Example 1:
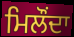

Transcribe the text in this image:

ਮਿਲੌਂਦਾ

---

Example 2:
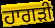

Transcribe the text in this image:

ਹਾਗੜੀ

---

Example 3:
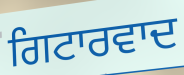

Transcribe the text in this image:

ਗਿਟਾਰਵਾਦ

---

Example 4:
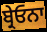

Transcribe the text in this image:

ਬ੍ਰੇਓਨਾ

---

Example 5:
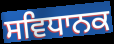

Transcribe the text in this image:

ਸਵਿਧਾਨਕ